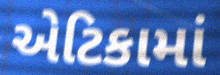
એટિકામાં